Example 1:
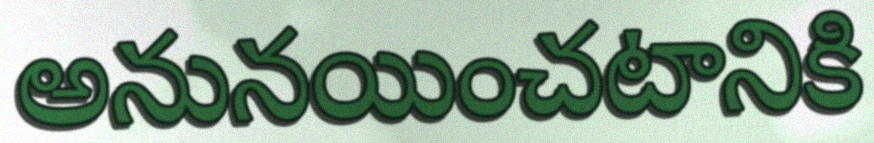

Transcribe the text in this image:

అనునయించటానికి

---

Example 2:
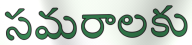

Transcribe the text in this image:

సమరాలకు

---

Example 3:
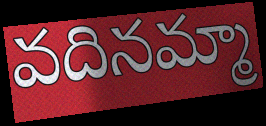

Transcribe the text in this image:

వదినమ్మా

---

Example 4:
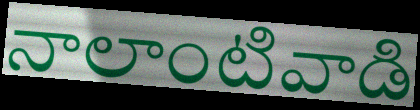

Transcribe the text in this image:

నాలాంటివాడి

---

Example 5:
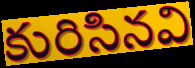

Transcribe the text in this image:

కురిసినవి